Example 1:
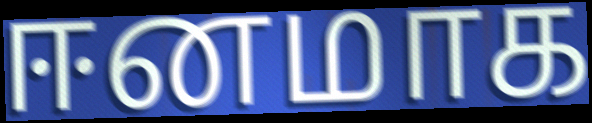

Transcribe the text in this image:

ஈனமாக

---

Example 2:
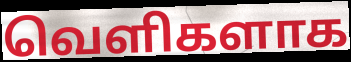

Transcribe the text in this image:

வெளிகளாக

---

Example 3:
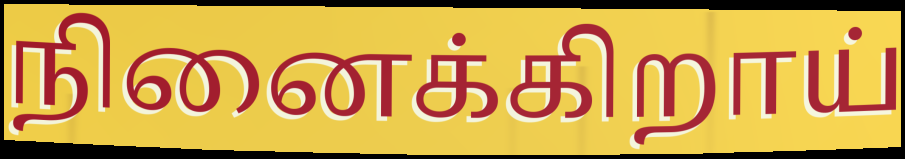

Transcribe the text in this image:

நினைக்கிறாய்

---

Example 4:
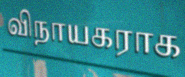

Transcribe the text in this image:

விநாயகராக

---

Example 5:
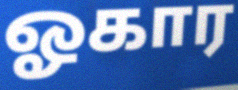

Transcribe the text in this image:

ஓகார